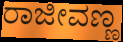
ರಾಜೀವಣ್ಣ